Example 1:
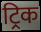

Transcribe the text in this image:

ट्रिक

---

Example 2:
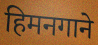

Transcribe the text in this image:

हिमनगाने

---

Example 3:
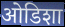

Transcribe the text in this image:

ओडिशा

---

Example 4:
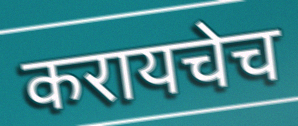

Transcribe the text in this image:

करायचेच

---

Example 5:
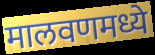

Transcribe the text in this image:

मालवणमध्ये